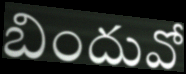
బిందువో